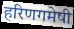
हरिणगमेषी